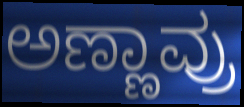
ಅಣ್ಣಾವ್ರು